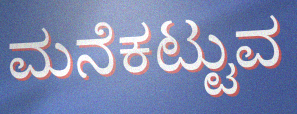
ಮನೆಕಟ್ಟುವ